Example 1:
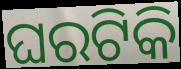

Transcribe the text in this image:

ଘରଟିକି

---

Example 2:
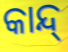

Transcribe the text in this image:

କାନ୍ଦ୍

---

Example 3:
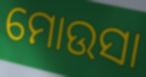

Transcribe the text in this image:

ମୋଉସା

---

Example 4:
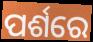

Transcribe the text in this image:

ପର୍ଶରେ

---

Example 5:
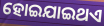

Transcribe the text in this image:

ହୋଇଯାଇଥଏ